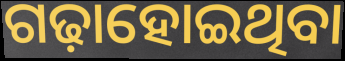
ଗଢ଼ାହୋଇଥିବା